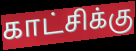
காட்சிக்கு